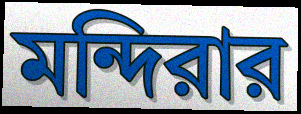
মন্দিরার